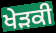
ਖੇੜਕੀ